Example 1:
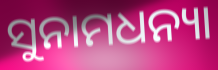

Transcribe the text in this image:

ସୁନାମଧନ୍ୟା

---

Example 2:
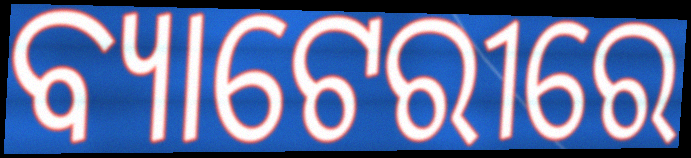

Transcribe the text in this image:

ବ୍ୟାଟେରୀରେ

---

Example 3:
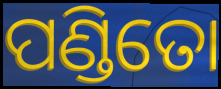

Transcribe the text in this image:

ପଣ୍ଡିତୋ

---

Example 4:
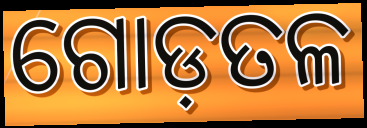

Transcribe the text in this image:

ଗୋଡ଼ତଳ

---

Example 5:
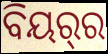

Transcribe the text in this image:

ବିୟର୍‌ର